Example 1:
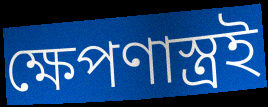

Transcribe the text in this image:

ক্ষেপণাস্ত্রই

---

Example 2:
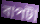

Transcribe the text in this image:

বাপটা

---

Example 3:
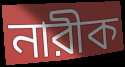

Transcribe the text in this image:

নারীক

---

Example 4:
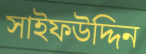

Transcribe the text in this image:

সাইফউদ্দিন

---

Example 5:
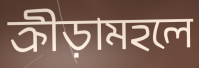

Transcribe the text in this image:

ক্রীড়ামহলে